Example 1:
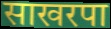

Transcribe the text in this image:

साखरपा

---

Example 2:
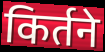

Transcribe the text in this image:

किर्तने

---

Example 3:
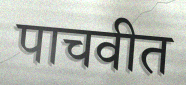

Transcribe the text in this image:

पाचवीत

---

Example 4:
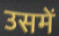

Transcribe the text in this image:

उसमें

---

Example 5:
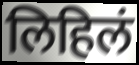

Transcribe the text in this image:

लिहिलं